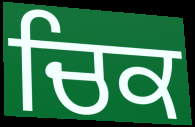
ਚਿਕ